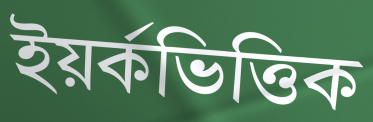
ইয়র্কভিত্তিক